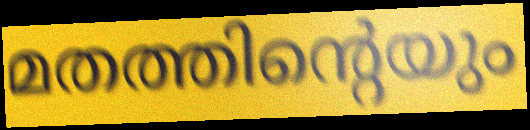
മതത്തിന്റെയും